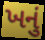
ખનું